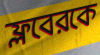
ফ্লবেরকে